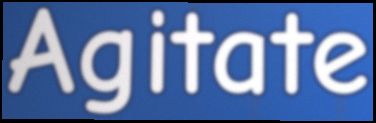
Agitate